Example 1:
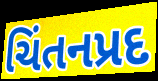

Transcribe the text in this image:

ચિંતનપ્રદ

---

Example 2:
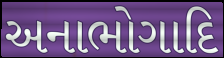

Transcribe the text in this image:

અનાભોગાદિ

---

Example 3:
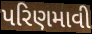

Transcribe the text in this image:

પરિણમાવી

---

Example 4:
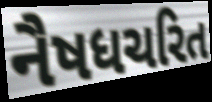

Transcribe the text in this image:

નૈષધચરિત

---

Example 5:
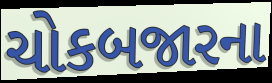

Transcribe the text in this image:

ચોકબજારના